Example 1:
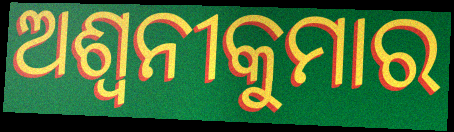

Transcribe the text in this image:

ଅଶ୍ୱନୀକୁମାର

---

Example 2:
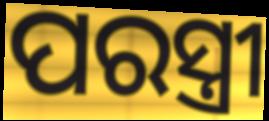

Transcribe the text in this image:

ପରସ୍ତ୍ରୀ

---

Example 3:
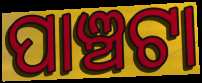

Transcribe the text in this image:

ପାଞ୍ଚଟା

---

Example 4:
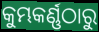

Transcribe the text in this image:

କୁମ୍ଭକର୍ଣ୍ଣଠାରୁ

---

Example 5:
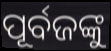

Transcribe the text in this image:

ପୂର୍ବଜଙ୍କୁ